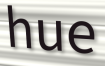
hue